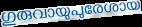
ഗുരുവായുപുരേശായ